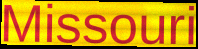
Missouri